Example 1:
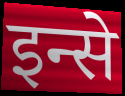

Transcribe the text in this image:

इन्से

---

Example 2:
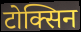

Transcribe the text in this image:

टोक्सिन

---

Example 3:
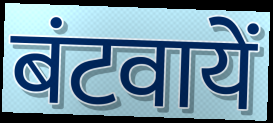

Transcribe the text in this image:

बंटवायें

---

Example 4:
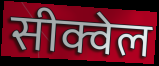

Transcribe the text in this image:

सीक्वेल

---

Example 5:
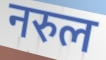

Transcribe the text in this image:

नरुल